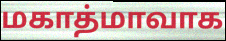
மகாத்மாவாக